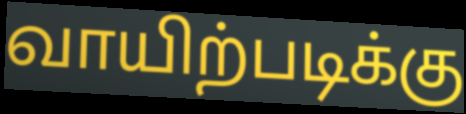
வாயிற்படிக்கு